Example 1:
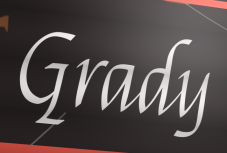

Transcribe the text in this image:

Grady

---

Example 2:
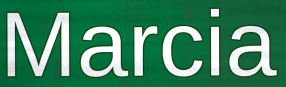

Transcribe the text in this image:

Marcia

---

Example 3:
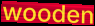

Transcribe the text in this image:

wooden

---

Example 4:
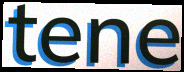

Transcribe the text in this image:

tene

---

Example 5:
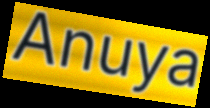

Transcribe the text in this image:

Anuya